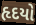
હૃદયો